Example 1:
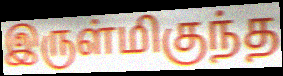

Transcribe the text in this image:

இருள்மிகுந்த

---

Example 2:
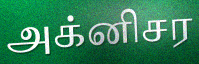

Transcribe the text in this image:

அக்னிசர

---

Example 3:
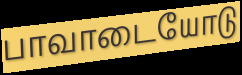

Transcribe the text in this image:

பாவாடையோடு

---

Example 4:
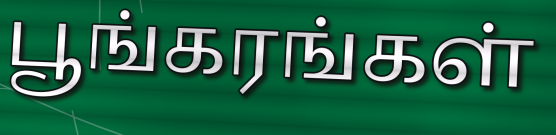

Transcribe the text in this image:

பூங்கரங்கள்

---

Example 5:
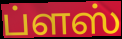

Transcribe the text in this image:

ப்ளஸ்